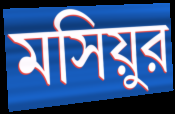
মসিয়ুর